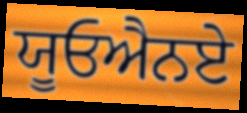
ਯੂਓਐਨਏ